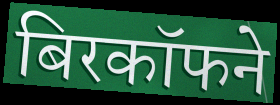
बिरकॉफने